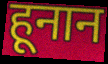
हूनान